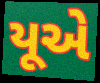
યૂએ